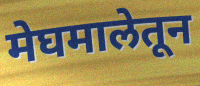
मेघमालेतून